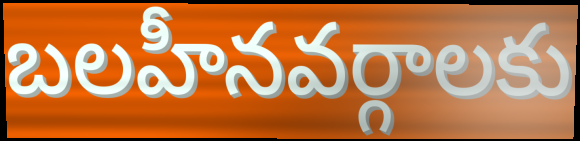
బలహీనవర్గాలకు